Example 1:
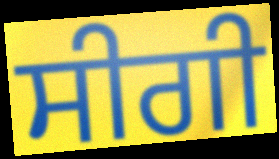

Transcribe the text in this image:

ਸੀਗੀ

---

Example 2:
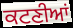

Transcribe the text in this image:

ਕਟਣੀਆਂ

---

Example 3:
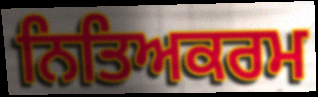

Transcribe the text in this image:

ਨਿਤਿਅਕਰਮ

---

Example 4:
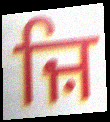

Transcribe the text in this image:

ਜ਼ਿ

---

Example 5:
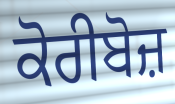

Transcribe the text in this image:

ਕੋਰੀਬੋਜ਼